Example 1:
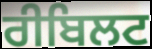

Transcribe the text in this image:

ਰੀਬਿਲਟ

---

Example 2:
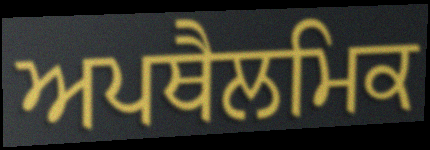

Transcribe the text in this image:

ਅਪਥੈਲਮਿਕ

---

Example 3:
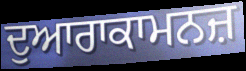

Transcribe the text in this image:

ਦੁਆਰਾਕਾਮਨਜ਼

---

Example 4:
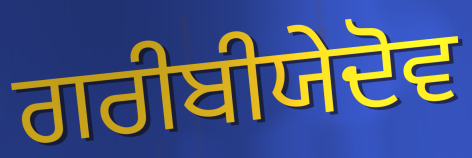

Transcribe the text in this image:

ਗਰੀਬੀਯੇਦੋਵ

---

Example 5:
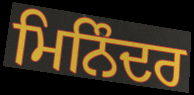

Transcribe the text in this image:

ਮਿਨਿੰਦਰ